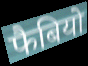
फैबियो